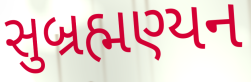
સુબ્રહ્મણ્યન